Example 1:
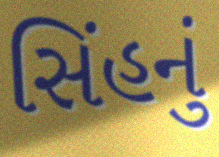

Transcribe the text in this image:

સિંહનું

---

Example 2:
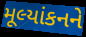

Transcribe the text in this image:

મૂલ્યાંકનને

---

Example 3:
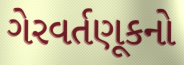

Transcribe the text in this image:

ગેરવર્તણૂકનો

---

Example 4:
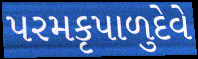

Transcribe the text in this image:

પરમકૃપાળુદેવે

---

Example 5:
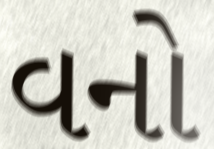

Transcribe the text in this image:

વનો